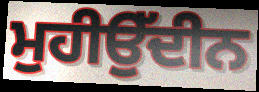
ਮੁਹੀਉੱਦੀਨ